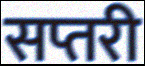
सप्तरी